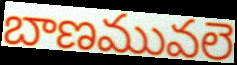
బాణమువలె